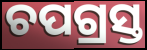
ଚପଗ୍ରସ୍ତ